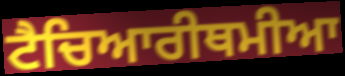
ਟੈਚਿਆਰੀਥਮੀਆ